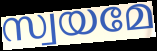
സ്വയമേ